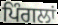
ਪਿੰਗਲਾਂ